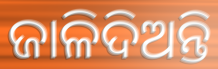
ଜାଳିଦିଅନ୍ତି